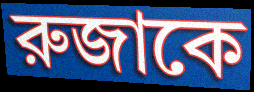
রুজাকে